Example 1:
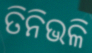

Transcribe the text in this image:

ତିନିଭଳି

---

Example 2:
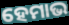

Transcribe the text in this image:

ହେମାଭ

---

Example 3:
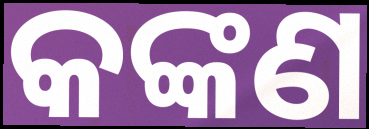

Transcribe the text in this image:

କଙ୍କଣ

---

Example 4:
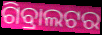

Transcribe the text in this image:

ଗିବ୍ରାଲଟର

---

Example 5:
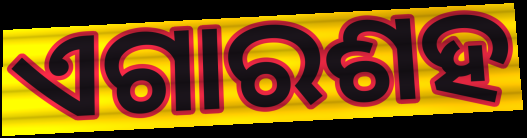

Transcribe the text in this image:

ଏଗାରଶହ